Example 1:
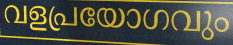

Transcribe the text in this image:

വളപ്രയോഗവും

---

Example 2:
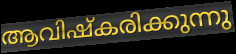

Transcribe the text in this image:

ആവിഷ്കരിക്കുന്നു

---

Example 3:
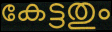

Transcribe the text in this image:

കേട്ടതും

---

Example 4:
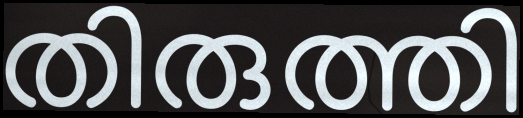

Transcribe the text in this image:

തിരുത്തി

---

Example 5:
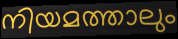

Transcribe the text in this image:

നിയമത്താലും